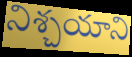
నిశ్చయాని